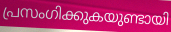
പ്രസംഗിക്കുകയുണ്ടായി